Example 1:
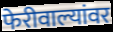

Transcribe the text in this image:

फेरीवाल्यांवर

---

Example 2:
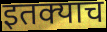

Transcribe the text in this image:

इतक्याच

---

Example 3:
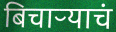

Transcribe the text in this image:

बिचाऱ्याचं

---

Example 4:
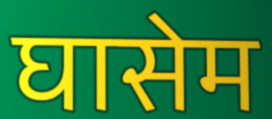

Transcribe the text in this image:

घासेम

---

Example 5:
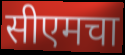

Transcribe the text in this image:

सीएमचा